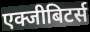
एक्जीबिटर्स